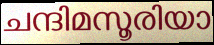
ചന്ദിമസൂരിയാ